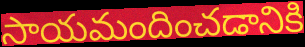
సాయమందించడానికి